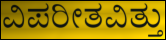
ವಿಪರೀತವಿತ್ತು